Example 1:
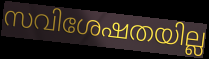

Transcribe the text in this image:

സവിശേഷതയില്ല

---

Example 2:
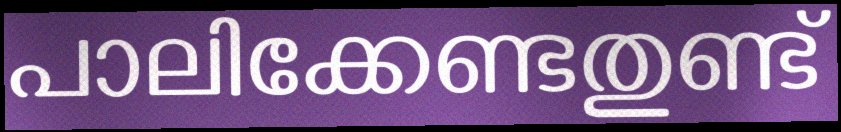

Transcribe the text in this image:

പാലിക്കേണ്ടതുണ്ട്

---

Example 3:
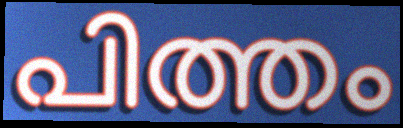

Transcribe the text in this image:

പിത്തം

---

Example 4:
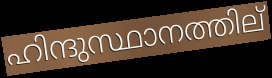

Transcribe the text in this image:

ഹിന്ദുസ്ഥാനത്തില്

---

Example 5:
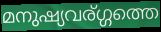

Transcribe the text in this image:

മനുഷ്യവര്ഗ്ഗത്തെ